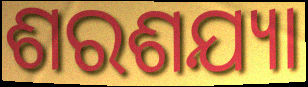
ଶରଶଯ୍ୟା